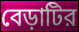
বেড়াটির